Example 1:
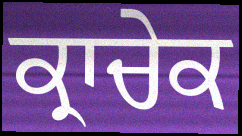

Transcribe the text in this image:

ਕ੍ਰਾਚੇਕ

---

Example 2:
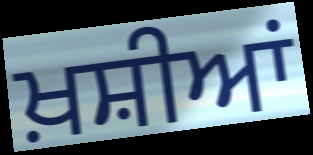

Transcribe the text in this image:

ਖ਼ਸ਼ੀਆਂ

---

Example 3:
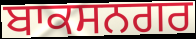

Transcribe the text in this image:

ਬਾਕਸਨਗਰ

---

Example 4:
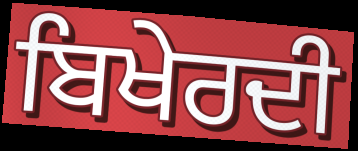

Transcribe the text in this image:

ਬਿਖੇਰਦੀ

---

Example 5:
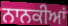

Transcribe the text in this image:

ਨਾਨਕੀਆਂ